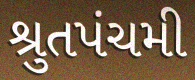
શ્રુતપંચમી